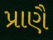
પ્રાણૈ